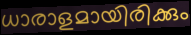
ധാരാളമായിരിക്കും